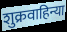
शुक्रवाहिन्या